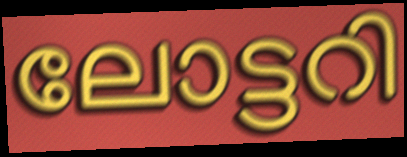
ലോട്ടറി